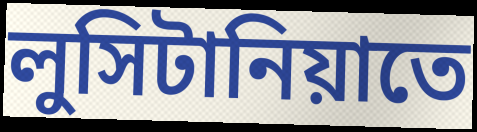
লুসিটানিয়াতে